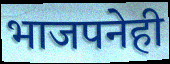
भाजपनेही